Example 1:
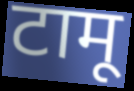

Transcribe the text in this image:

टामू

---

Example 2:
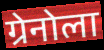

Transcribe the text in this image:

ग्रेनोला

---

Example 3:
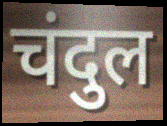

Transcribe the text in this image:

चंदुल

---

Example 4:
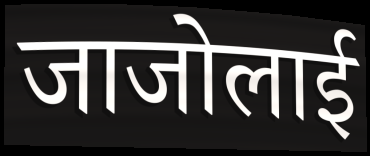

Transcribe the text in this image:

जाजोलाई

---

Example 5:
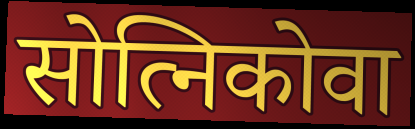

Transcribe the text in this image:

सोत्निकोवा